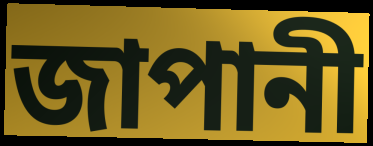
জাপানী